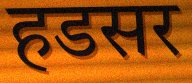
हडसर